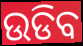
ଉଡିବ